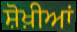
ਸ਼ੋਖ਼ੀਆਂ